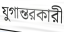
যুগান্তরকারী